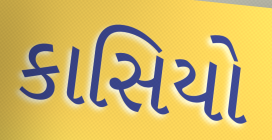
કાસિયો